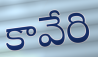
కావేరి